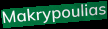
Makrypoulias